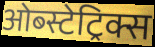
ओब्स्टेट्रिक्स